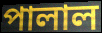
পালাল